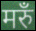
मरुँ